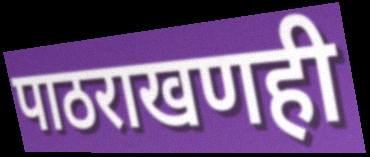
पाठराखणही